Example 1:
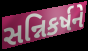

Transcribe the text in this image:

સન્નિકર્ષને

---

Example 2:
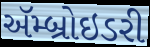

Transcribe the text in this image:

ઍમ્બ્રોઇડરી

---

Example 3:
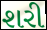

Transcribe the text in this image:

શરી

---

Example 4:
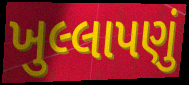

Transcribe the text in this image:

ખુલ્લાપણું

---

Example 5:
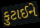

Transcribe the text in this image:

કુટાઈને